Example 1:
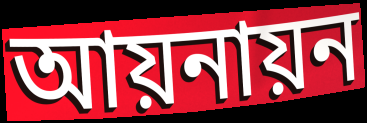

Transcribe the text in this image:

আয়নায়ন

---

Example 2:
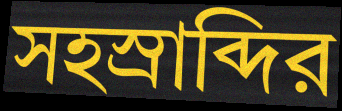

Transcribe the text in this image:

সহস্রাব্দির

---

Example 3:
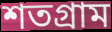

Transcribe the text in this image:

শতগ্রাম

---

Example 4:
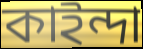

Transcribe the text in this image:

কাইন্দা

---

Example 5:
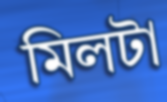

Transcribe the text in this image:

মিলটা